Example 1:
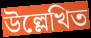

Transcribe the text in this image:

উল্লেখিত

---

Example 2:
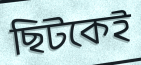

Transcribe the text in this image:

ছিটকেই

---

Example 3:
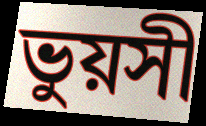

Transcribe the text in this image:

ভুয়সী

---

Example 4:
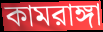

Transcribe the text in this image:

কামরাঙ্গা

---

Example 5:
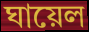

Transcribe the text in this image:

ঘায়েল